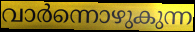
വാർന്നൊഴുകുന്ന